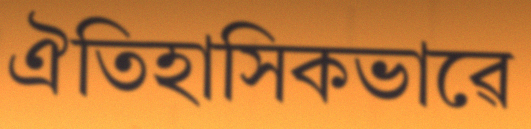
ঐতিহাসিকভাৱে